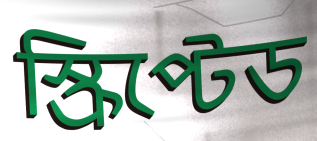
স্ক্রিপ্টেড